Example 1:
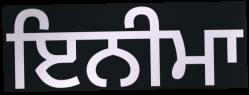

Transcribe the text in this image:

ਇਨੀਮਾ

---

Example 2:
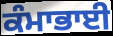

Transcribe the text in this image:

ਕੰਮਾਭਾਈ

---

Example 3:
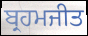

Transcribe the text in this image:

ਬ੍ਰਹਮਜੀਤ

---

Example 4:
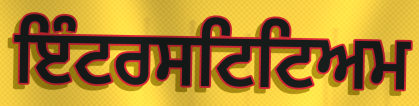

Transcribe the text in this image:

ਇੰਟਰਸਟਿਟਿਅਮ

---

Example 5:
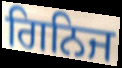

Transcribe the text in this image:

ਗਿਨਿਜ